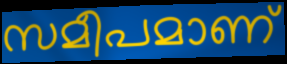
സമീപമാണ്